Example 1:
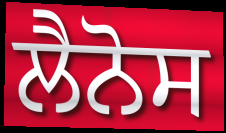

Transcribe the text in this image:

ਲੈਨੋਸ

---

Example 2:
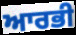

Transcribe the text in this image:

ਆਰਭੀ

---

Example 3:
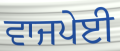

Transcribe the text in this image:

ਵਾਜਪੇਈ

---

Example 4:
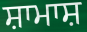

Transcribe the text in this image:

ਸ਼ਾਮਾਸ਼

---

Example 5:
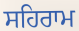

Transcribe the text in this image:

ਸਹਿਰਾਮ